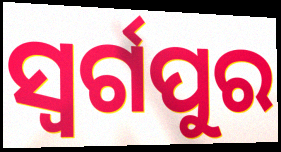
ସ୍ଵର୍ଗପୁର